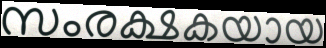
സംരക്ഷകയായ